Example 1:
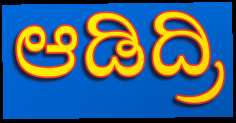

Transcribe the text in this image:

ಆಡಿದ್ರಿ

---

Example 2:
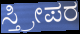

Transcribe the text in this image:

ಸ್ತ್ರೀಪರ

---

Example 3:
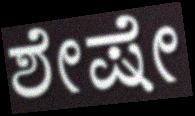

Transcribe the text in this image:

ಶೇಷೇ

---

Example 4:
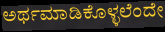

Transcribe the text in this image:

ಅರ್ಥಮಾಡಿಕೊಳ್ಳಲೆಂದೇ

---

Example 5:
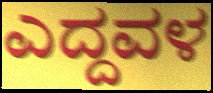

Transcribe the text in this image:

ಎದ್ದವಳ